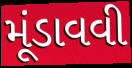
મૂંડાવવી